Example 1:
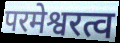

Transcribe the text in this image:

परमेश्वरत्व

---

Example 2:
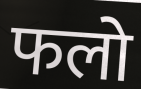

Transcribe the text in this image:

फलो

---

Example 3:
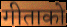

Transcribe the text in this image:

गीताको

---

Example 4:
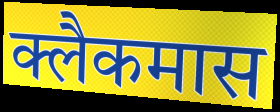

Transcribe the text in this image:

क्लैकमास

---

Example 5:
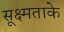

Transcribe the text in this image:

सूक्ष्मताके